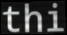
thi